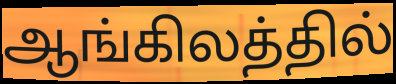
ஆங்கிலத்தில்